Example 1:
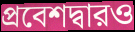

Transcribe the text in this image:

প্রবেশদ্বারও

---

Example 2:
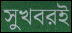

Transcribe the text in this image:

সুখবরই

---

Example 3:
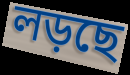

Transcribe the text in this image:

লড়ছে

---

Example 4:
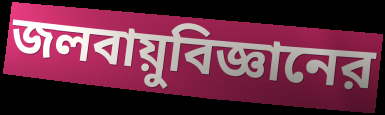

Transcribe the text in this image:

জলবায়ুবিজ্ঞানের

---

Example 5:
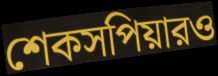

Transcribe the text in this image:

শেকসপিয়ারও